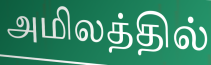
அமிலத்தில்